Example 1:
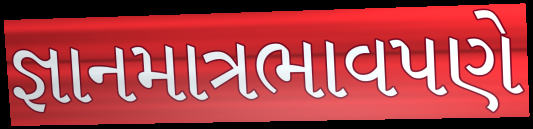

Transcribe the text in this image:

જ્ઞાનમાત્રભાવપણે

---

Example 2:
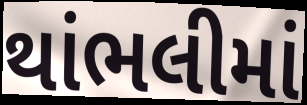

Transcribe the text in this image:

થાંભલીમાં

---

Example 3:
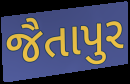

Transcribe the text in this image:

જૈતાપુર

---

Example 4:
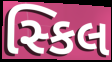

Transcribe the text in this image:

સ્કિલ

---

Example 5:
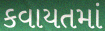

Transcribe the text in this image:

કવાયતમાં